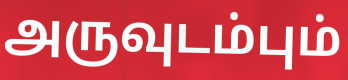
அருவுடம்பும்